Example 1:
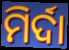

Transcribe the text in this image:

ମିର୍ଦା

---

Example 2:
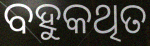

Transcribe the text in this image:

ବହୁକଥିତ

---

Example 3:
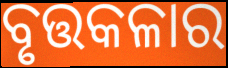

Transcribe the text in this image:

ବୃତ୍ତକଳାର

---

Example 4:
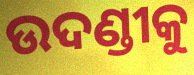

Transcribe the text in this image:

ଉଦଣ୍ଡୀକୁ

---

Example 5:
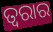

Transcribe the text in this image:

ତ୍ୱରାର